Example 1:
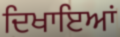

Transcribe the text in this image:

ਦਿਖਾਇਆਂ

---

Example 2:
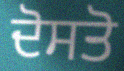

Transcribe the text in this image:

ਦੋਸਤੋ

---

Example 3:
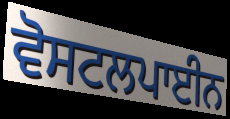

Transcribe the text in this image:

ਵੋਸਟਲਪਾਈਨ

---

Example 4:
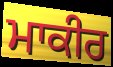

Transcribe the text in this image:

ਮਾਕੀਰ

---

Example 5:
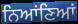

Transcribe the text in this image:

ਨਿਆਂਣਿਆਂ